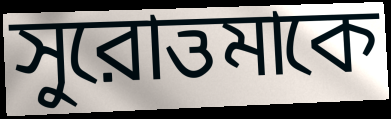
সুরোত্তমাকে